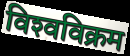
विश्वविक्रम